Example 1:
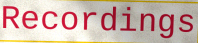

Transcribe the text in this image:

Recordings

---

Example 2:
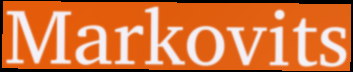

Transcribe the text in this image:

Markovits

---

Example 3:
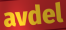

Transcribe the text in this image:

avdel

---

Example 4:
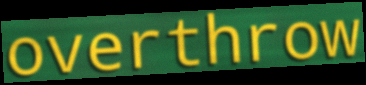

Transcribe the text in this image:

overthrow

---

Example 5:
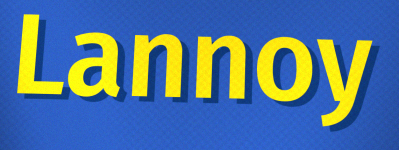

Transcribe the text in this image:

Lannoy